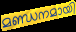
മണ്ഡനമായി